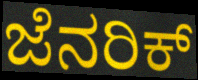
ಜೆನರಿಕ್